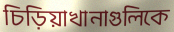
চিড়িয়াখানাগুলিকে